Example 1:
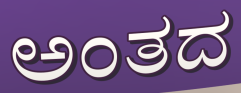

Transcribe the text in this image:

ಅಂತದ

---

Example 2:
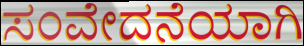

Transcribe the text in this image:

ಸಂವೇದನೆಯಾಗಿ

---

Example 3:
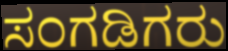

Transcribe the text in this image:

ಸಂಗಡಿಗರು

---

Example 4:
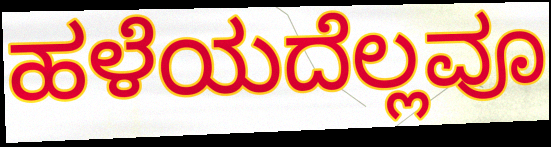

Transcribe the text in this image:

ಹಳೆಯದೆಲ್ಲವೂ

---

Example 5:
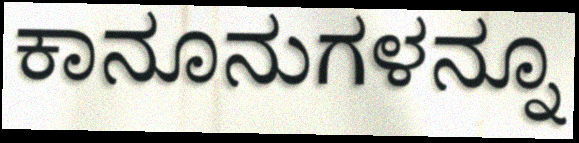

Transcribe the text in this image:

ಕಾನೂನುಗಳನ್ನೂ